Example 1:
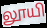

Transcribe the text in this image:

லூயி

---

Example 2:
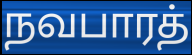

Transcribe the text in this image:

நவபாரத்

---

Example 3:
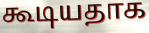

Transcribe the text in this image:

கூடியதாக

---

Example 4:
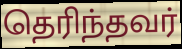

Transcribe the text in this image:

தெரிந்தவர்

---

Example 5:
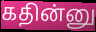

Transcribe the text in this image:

கதின்னு